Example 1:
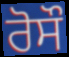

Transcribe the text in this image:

ਰੋਸੌ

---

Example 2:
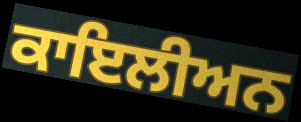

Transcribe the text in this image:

ਕਾਇਲੀਅਨ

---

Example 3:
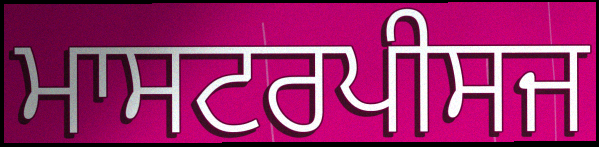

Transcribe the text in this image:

ਮਾਸਟਰਪੀਸਜ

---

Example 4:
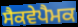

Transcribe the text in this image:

ਸੈਕਵੇਪੈਮਕ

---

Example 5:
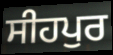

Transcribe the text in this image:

ਸੀਹਪੁਰ